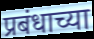
प्रबंधाच्या